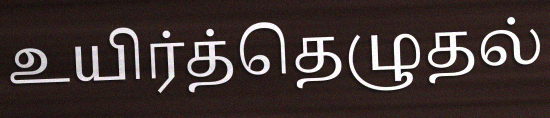
உயிர்த்தெழுதல்